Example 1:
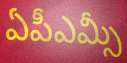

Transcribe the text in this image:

ఏపీఎమ్సీ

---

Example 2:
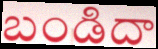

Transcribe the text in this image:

బండిదా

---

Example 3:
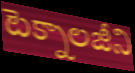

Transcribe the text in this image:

టెక్నాలజీని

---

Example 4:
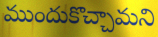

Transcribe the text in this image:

ముందుకొచ్చామని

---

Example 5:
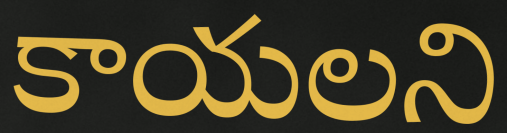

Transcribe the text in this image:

కాయలని